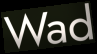
Wad